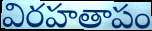
విరహతాపం